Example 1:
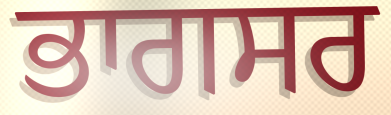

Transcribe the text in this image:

ਭਾਗਸਰ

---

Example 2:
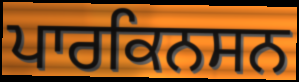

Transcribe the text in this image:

ਪਾਰਕਿਨਸਨ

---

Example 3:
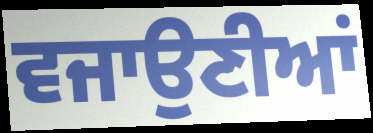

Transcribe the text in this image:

ਵਜਾਉਣੀਆਂ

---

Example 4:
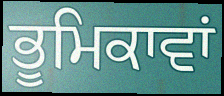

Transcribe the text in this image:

ਭੂਮਿਕਾਵਾਂ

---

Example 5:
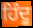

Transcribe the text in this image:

ਹਿੰਦੂ